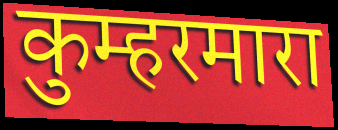
कुम्हरमारा